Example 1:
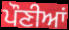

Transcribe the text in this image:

ਪੌਣੀਆਂ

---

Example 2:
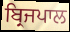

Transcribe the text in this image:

ਬ੍ਰਿਜਪਾਲ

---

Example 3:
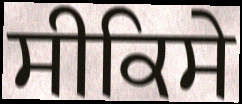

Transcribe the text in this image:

ਸੀਕਿਸੇ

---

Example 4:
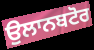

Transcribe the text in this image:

ਉਲਾਨਬਟੋਰ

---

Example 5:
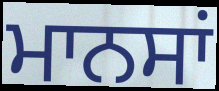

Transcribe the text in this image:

ਮਾਨਸਾਂ